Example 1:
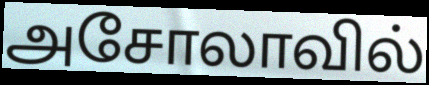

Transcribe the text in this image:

அசோலாவில்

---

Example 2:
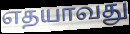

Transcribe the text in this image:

எதயாவது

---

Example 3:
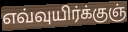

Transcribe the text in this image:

எவ்வுயிர்க்குஞ்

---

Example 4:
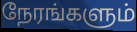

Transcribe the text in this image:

நேரங்களும்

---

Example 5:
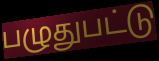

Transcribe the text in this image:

பழுதுபட்டு